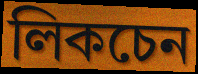
লিকচেন